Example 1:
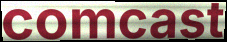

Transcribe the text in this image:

comcast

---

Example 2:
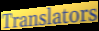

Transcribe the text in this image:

Translators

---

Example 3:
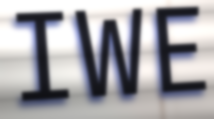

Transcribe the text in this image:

IWE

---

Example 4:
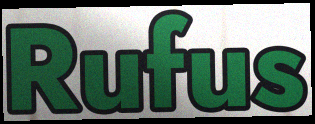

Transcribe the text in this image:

Rufus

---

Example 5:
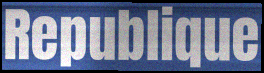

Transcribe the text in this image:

Republique